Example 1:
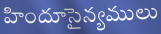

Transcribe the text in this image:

హిందూసైన్యములు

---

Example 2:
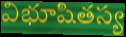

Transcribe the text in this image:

విభూషితస్య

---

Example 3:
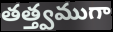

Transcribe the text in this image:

తత్త్వముగా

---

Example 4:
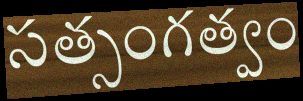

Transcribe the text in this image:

సత్సంగత్వం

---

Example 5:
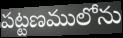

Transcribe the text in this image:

పట్టణములోను